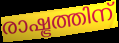
രാഷ്ട്രത്തിന്